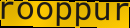
rooppur